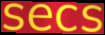
secs